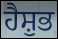
ਹੈਸ਼ੁਭ